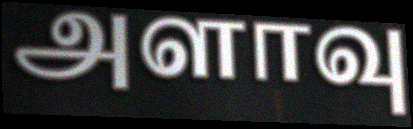
அளாவு